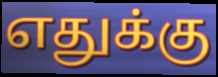
எதுக்கு